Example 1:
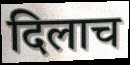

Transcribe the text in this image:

दिलाच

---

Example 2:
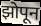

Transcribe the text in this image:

झोपून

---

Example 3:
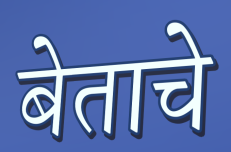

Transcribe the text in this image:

बेताचे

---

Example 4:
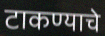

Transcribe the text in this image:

टाकण्याचे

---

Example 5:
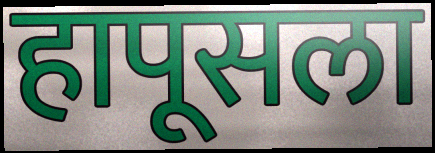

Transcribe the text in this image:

हापूसला